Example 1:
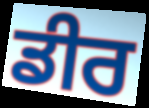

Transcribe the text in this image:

ਡੀਰ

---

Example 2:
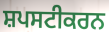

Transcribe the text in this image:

ਸ਼ਪਸਟੀਕਰਨ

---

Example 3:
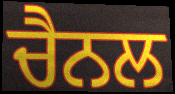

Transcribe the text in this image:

ਚੈਨਲ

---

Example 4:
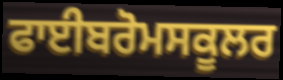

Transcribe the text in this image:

ਫਾਈਬਰੋਮਸਕੂਲਰ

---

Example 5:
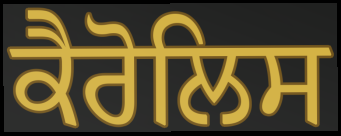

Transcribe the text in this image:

ਕੈਰੋਲਿਸ